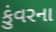
કુંવરના